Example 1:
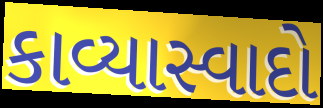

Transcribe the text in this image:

કાવ્યાસ્વાદો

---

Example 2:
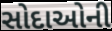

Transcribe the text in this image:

સોદાઓની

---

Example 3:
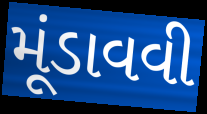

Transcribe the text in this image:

મૂંડાવવી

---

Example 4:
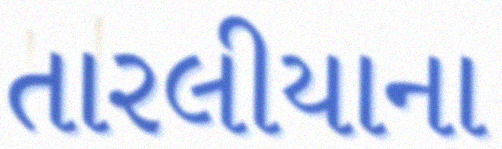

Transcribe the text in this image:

તારલીયાના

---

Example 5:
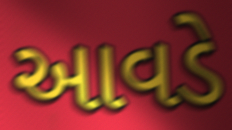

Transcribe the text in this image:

આવડે